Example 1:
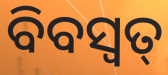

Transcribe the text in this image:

ବିବସ୍ଵତ୍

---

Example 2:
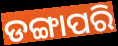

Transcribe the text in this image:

ଡଙ୍ଗାପରି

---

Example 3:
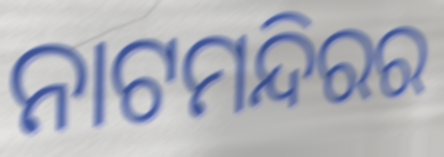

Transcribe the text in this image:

ନାଟମନ୍ଦିରର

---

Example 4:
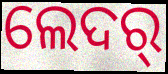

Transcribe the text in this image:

ଲେଦର୍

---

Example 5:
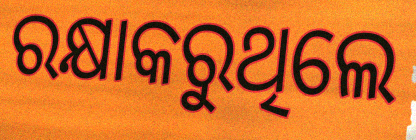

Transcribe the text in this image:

ରକ୍ଷାକରୁଥିଲେ